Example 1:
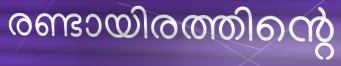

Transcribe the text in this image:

രണ്ടായിരത്തിന്റെ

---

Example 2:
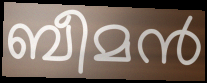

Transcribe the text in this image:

ബീമൻ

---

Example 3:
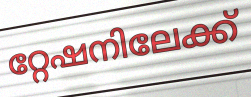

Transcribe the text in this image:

റ്റേഷനിലേക്ക്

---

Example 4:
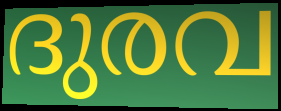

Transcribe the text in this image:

ദുരവ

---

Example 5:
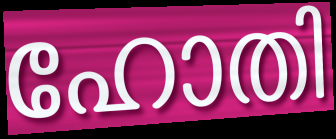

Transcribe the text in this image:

ഹോതി